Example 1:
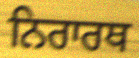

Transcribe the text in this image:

ਨਿਰਾਰਥ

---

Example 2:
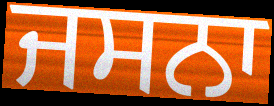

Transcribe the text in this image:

ਜਸਨਾ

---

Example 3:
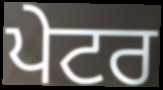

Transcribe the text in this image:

ਪੇਟਰ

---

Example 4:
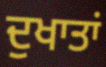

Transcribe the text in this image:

ਦੁਖਾਤਾਂ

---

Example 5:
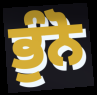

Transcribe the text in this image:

ਭੁੰਨੋ